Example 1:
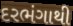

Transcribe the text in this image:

દરભંગાથી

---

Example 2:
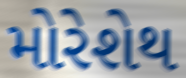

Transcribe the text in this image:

મોરેશેથ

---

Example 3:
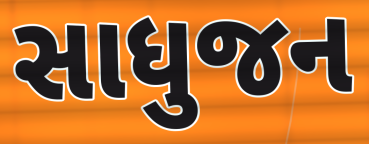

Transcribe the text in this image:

સાધુજન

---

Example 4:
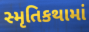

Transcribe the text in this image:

સ્મૃતિકથામાં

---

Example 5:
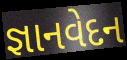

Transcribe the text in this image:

જ્ઞાનવેદન